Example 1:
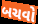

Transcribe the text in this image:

બચવો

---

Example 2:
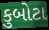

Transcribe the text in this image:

કુબોટા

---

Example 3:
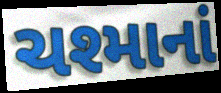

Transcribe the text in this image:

ચશ્માનાં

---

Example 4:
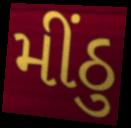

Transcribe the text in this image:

મીંઠુ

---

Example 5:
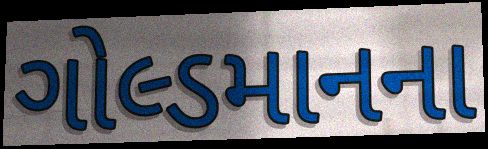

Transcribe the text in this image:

ગોલ્ડમાનના